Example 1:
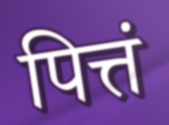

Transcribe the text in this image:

पित्तं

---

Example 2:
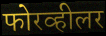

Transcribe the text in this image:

फोरव्हीलर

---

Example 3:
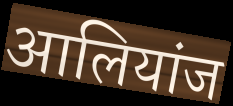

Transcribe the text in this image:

आलियांज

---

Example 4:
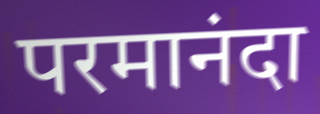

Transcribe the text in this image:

परमानंदा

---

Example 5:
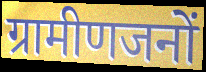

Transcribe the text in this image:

ग्रामीणजनों